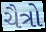
ચૈત્રો